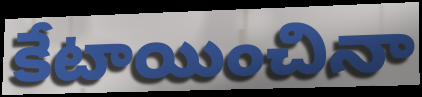
కేటాయించినా